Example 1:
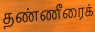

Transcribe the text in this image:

தண்ணீரைக்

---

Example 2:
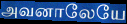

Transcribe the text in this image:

அவனாலேயே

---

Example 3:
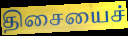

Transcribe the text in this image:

திசையைச்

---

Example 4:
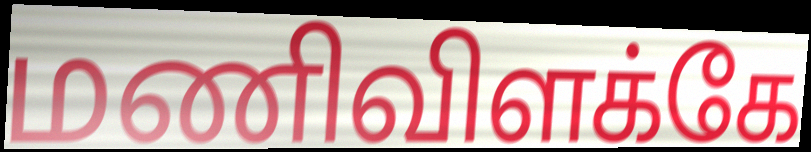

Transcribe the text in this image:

மணிவிளக்கே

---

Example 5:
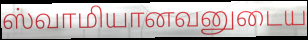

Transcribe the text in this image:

ஸ்வாமியானவனுடைய